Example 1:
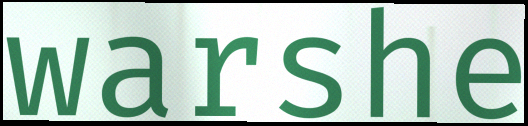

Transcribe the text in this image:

warshe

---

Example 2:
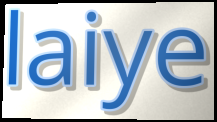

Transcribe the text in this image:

laiye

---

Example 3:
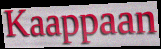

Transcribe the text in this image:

Kaappaan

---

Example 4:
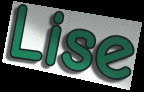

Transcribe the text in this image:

Lise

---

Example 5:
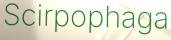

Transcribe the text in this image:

Scirpophaga